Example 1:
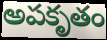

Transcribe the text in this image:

అపకృతం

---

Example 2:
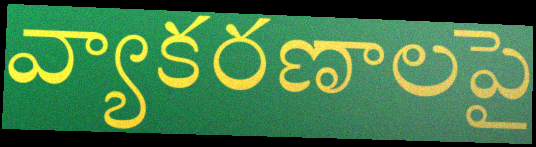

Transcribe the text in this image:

వ్యాకరణాలపై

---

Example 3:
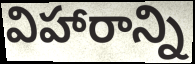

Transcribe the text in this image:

విహారాన్ని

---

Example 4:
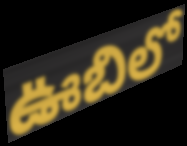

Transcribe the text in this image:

ఊబిలో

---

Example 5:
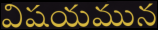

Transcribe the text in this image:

విషయమున